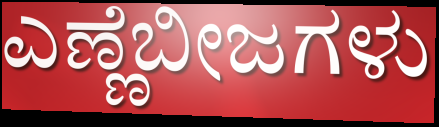
ಎಣ್ಣೆಬೀಜಗಳು